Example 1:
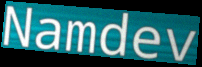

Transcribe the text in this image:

Namdev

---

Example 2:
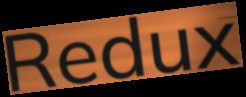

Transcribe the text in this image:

Redux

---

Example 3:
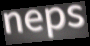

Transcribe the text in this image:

neps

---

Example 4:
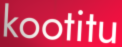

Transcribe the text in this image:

kootitu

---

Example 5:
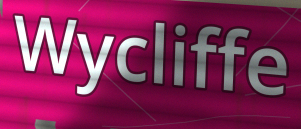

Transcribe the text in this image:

Wycliffe